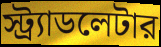
স্ট্র্যাডলেটার